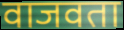
वाजवता